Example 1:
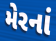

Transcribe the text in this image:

મેરનાં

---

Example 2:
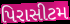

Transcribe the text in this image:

પિરાસીટમ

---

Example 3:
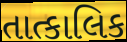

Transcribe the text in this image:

તાત્કાલિક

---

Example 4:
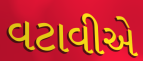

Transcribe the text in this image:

વટાવીએ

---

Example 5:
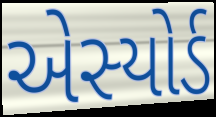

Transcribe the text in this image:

એસ્યોર્ડ